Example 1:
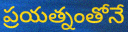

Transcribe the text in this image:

ప్రయత్నంతోనే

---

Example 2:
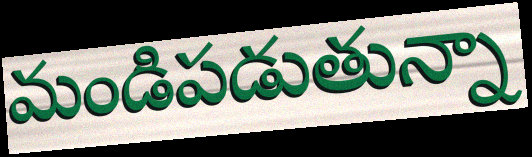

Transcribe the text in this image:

మండిపడుతున్నా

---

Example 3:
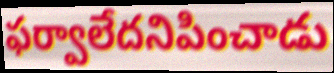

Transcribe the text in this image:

ఫర్వాలేదనిపించాడు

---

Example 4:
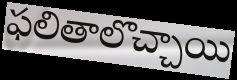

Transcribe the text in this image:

ఫలితాలొచ్చాయి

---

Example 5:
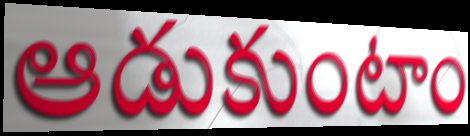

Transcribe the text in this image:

ఆడుకుంటాం